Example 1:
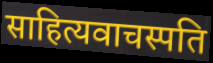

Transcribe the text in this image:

साहित्यवाचस्पति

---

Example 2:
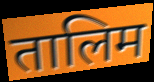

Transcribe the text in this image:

तालिम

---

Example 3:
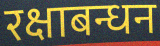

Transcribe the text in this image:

रक्षाबन्धन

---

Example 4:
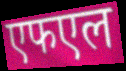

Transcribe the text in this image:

एफएल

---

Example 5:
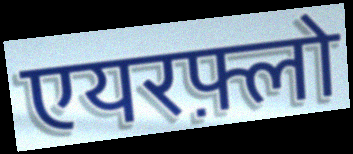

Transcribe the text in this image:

एयरफ़्लो